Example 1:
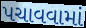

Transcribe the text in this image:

પચાવવામાં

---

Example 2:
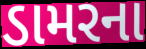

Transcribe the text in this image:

ડામરના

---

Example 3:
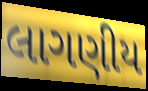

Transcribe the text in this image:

લાગણીય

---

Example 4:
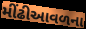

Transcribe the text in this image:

મીંઢીઆવળના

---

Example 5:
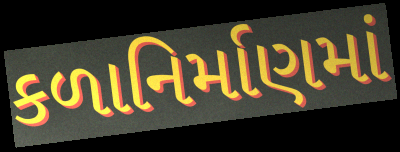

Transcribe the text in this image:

કળાનિર્માણમાં